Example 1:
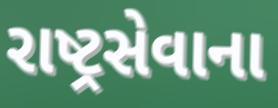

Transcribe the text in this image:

રાષ્ટ્રસેવાના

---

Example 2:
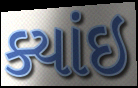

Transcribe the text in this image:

ક્યાંઇ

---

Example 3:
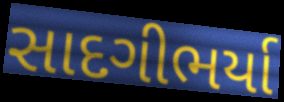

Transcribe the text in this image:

સાદગીભર્યા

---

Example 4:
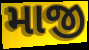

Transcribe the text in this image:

માજી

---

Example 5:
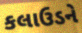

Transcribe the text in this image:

કલાઉડને